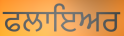
ਫਲਾਇਅਰ